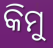
କିମୁ